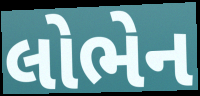
લોભેન